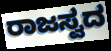
ರಾಜಸ್ವದ